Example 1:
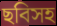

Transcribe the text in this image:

ছবিসহ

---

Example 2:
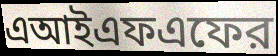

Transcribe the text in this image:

এআইএফএফের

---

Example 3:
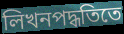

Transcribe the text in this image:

লিখনপদ্ধতিতে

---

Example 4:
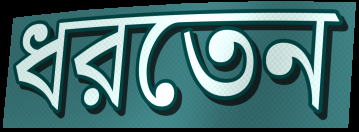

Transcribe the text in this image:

ধরতেন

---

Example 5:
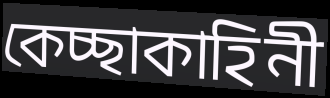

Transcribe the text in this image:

কেচ্ছাকাহিনী